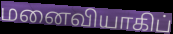
மனைவியாகிப்